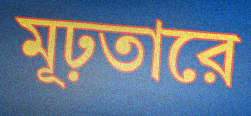
মূঢ়তারে